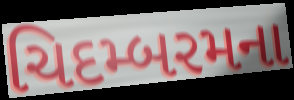
ચિદમ્બરમના